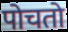
पोचतो